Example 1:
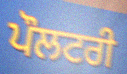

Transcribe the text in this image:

ਪੌਲਟਰੀ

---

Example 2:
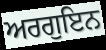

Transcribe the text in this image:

ਅਰਗੁਇਨ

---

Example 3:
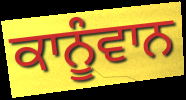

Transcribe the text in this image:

ਕਾਨੂੰਵਾਨ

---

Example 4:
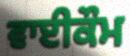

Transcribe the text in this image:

ਵਾਈਕੌਮ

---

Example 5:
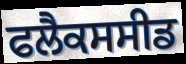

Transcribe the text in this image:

ਫਲੈਕਸਸੀਡ